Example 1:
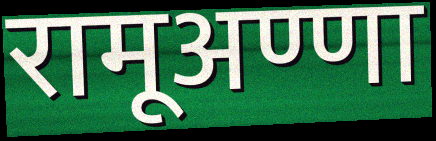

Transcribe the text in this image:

रामूअण्णा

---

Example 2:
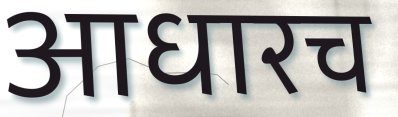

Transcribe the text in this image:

आधारच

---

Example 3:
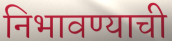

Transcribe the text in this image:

निभावण्याची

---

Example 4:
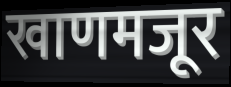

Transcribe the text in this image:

खाणमजूर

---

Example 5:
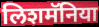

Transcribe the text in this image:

लिशमॅनिया